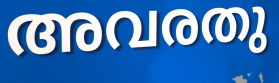
അവരതു